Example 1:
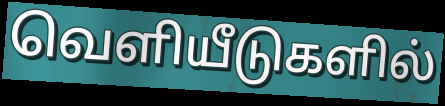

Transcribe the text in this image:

வெளியீடுகளில்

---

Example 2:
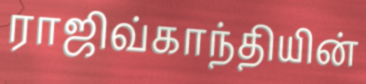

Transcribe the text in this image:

ராஜிவ்காந்தியின்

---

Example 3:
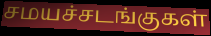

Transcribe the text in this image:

சமயச்சடங்குகள்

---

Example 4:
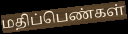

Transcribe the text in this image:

மதிப்பெண்கள்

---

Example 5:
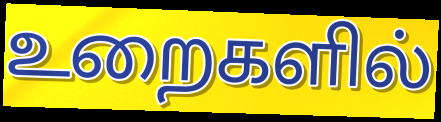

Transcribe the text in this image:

உறைகளில்